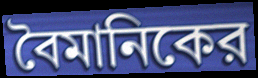
বৈমানিকের